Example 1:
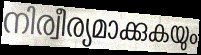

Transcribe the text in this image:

നിര്വീര്യമാക്കുകയും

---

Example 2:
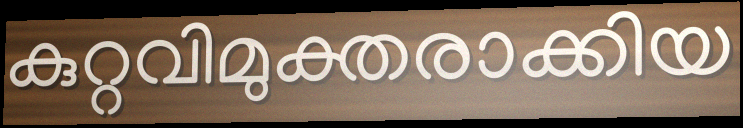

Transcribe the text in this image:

കുറ്റവിമുക്തരാക്കിയ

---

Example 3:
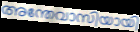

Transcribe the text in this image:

അന്തേവാസിയായി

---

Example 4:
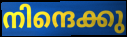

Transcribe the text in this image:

നിന്ദെക്കു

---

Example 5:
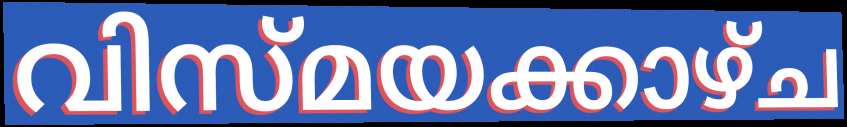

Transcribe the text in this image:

വിസ്മയക്കാഴ്ച